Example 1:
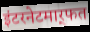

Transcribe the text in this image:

इंटरनेटमार्फत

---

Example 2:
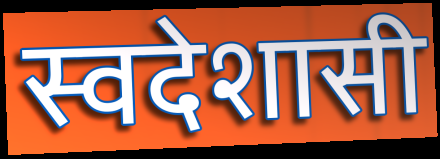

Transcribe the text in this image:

स्वदेशासी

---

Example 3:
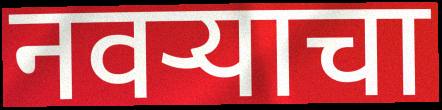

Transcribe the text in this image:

नवऱ्याचा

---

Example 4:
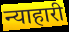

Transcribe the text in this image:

न्याहारी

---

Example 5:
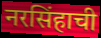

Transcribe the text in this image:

नरसिंहाची